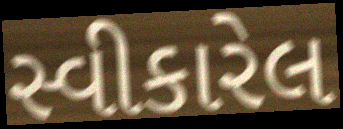
સ્વીકારેલ